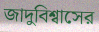
জাদুবিশ্বাসের